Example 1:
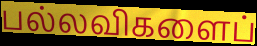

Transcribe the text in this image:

பல்லவிகளைப்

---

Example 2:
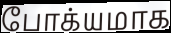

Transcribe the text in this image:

போக்யமாக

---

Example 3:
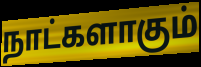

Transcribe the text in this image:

நாட்களாகும்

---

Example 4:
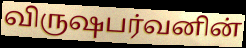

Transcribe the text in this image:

விருஷபர்வனின்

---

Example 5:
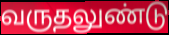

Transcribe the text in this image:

வருதலுண்டு